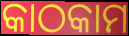
କାଠକାମ